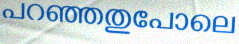
പറഞ്ഞതുപോലെ